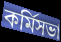
কর্মিসভা